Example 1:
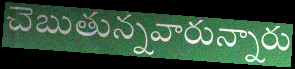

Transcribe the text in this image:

చెబుతున్నవారున్నారు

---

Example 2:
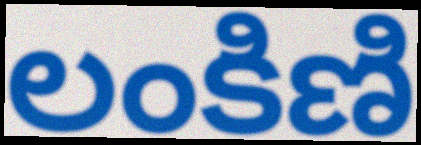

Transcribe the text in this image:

లంకిణి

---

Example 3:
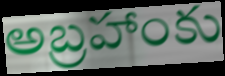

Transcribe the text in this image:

అబ్రహాంకు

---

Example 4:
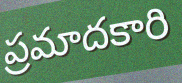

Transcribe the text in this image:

ప్రమాదకారి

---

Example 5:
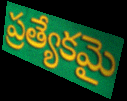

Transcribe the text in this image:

ప్రత్యేకమై